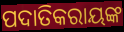
ପଦାତିକରାୟଙ୍କ